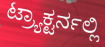
ಟ್ರ್ಯಾಕ್ಟರ್ನಲ್ಲಿ